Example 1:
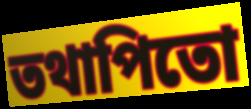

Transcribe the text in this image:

তথাপিতো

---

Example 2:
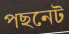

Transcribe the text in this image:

পছনেট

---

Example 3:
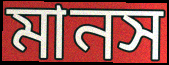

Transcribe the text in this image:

মানস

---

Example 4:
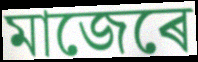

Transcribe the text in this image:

মাজেৰে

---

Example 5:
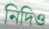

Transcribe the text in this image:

নিদিও